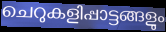
ചെറുകളിപ്പാട്ടങ്ങളും